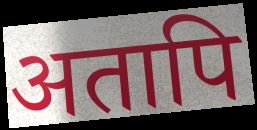
अतापि